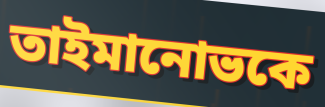
তাইমানোভকে